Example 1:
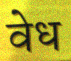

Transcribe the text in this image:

वेध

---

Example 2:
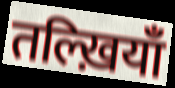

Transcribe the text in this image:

तल्ख़ियाँ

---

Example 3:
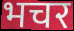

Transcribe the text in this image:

भचर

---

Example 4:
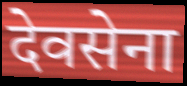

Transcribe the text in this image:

देवसेना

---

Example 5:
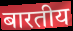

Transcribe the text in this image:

बारतीय